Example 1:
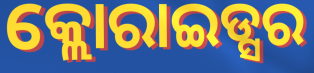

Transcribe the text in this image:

କ୍ଲୋରାଇଡ୍ସର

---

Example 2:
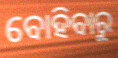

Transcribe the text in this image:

ବୋହିବାରୁ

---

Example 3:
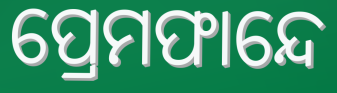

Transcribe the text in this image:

ପ୍ରେମଫାନ୍ଦେ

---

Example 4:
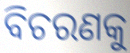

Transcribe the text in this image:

ବିଚରଣକୁ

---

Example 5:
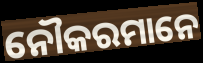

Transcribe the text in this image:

ନୌକରମାନେ